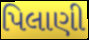
પિલાણી